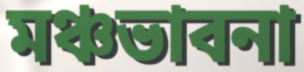
মঞ্চভাবনা